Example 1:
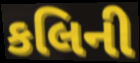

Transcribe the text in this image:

કલિની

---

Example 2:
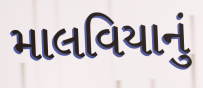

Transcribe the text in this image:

માલવિયાનું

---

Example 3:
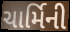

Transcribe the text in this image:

ચાર્મિની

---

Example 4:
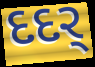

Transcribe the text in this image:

દદર્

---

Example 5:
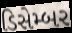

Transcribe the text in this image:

ડિસેમ્બર